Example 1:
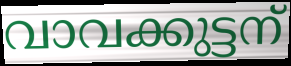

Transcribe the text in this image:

വാവക്കുട്ടന്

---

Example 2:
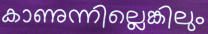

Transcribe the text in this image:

കാണുന്നില്ലെങ്കിലും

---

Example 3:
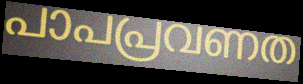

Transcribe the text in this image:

പാപപ്രവണത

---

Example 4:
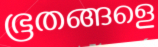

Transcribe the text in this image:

ഭൂതങ്ങളെ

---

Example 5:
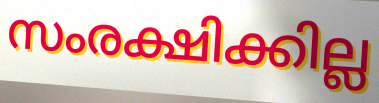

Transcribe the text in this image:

സംരക്ഷിക്കില്ല